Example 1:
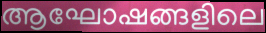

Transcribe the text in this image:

ആഘോഷങ്ങളിലെ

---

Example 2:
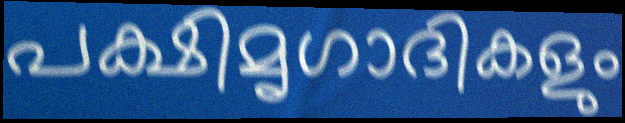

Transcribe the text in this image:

പക്ഷിമൃഗാദികളും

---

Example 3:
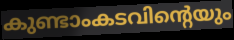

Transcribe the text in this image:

കുണ്ടാംകടവിന്റെയും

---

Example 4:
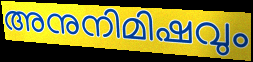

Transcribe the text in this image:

അനുനിമിഷവും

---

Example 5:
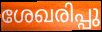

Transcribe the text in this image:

ശേഖരിപ്പു